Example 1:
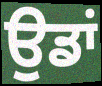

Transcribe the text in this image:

ਉਡਾਂ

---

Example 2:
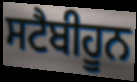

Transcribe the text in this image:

ਸਟੈਬੀਹੂਨ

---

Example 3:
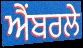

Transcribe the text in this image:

ਐਂਬਰਲੇ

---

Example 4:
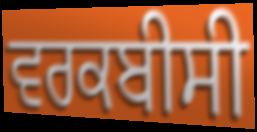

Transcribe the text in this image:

ਵਰਕਬੀਸੀ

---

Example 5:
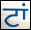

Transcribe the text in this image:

ਟਾਂ